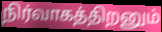
நிர்வாகத்திறனும்